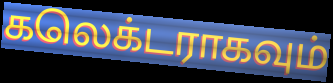
கலெக்டராகவும்